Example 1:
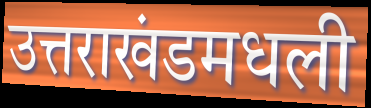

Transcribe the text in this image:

उत्तराखंडमधली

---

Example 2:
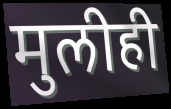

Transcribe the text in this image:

मुलीही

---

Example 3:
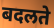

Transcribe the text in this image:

बदलते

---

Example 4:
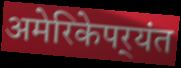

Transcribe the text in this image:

अमेरिकेपर्यंत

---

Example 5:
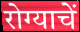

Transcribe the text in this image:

रोग्याचें